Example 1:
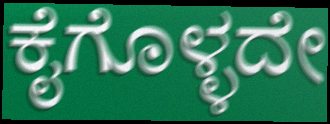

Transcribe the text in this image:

ಕೈಗೊಳ್ಳದೇ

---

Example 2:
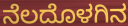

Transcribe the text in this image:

ನೆಲದೊಳಗಿನ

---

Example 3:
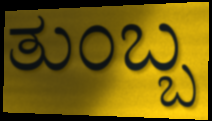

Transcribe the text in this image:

ತುಂಬ್ಬ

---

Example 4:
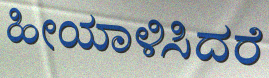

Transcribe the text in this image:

ಹೀಯಾಳಿಸಿದರೆ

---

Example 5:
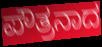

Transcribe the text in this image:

ಪೌತ್ರನಾದ